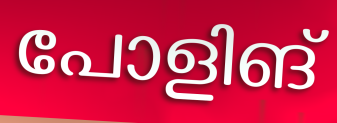
പോളിങ്